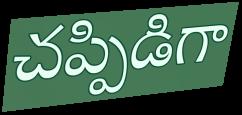
చప్పిడిగా